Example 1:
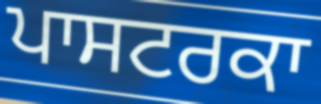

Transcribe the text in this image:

ਪਾਸਟਰਕਾ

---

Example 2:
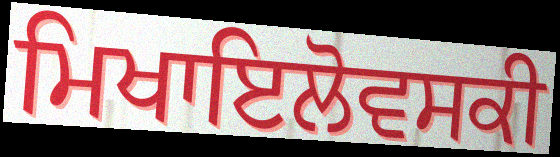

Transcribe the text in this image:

ਮਿਖਾਇਲੋਵਸਕੀ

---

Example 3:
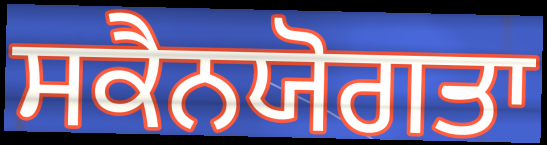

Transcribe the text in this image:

ਸਕੈਨਯੋਗਤਾ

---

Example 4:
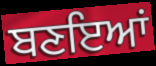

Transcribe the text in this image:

ਬਣਇਆਂ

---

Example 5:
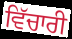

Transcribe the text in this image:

ਵਿੱਚਾਰੀ